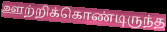
ஊற்றிக்கொண்டிருந்த